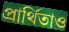
প্রার্থিতাও